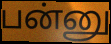
பன்னு